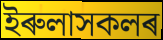
ইৰুলাসকলৰ